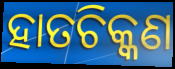
ହାତଚିକ୍କଣ